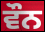
ਵੌਨ